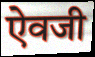
ऐवजी